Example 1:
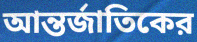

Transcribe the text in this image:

আন্তর্জাতিকের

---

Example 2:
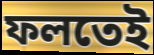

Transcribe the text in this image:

ফলতেই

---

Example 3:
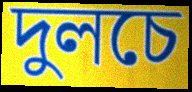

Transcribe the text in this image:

দুলচে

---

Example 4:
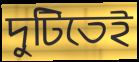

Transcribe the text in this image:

দুটিতেই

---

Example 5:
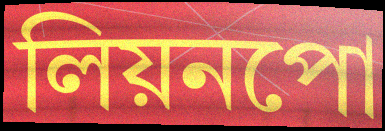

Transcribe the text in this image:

লিয়নপো